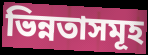
ভিন্নতাসমূহ